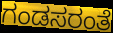
ಗಂಡಸರಂತೆ